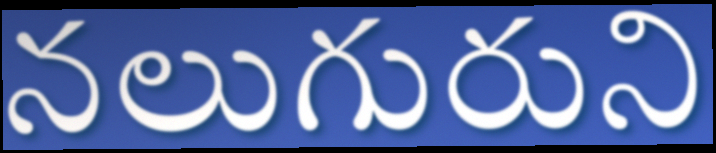
నలుగురుని